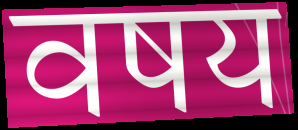
वषय